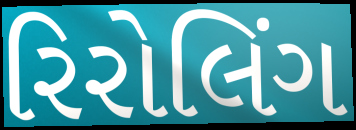
રિરોલિંગ